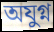
অযুগ্ন